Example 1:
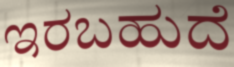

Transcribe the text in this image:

ಇರಬಹುದೆ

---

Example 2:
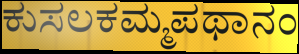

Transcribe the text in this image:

ಕುಸಲಕಮ್ಮಪಥಾನಂ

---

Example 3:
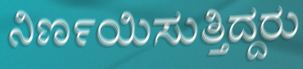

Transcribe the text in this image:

ನಿರ್ಣಯಿಸುತ್ತಿದ್ದರು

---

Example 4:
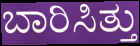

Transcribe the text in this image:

ಬಾರಿಸಿತ್ತು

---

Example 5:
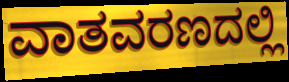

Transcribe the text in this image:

ವಾತವರಣದಲ್ಲಿ